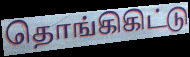
தொங்கிகிட்டு